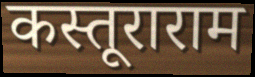
कस्तूराराम